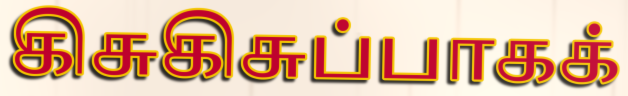
கிசுகிசுப்பாகக்